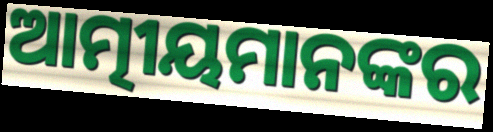
ଆତ୍ମୀୟମାନଙ୍କର